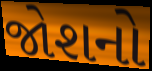
જોશનો